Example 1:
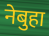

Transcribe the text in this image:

नेबुहा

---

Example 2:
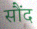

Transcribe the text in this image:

सौंद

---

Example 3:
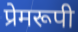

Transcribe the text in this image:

प्रेमरूपी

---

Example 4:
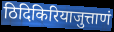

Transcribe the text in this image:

ठिदिकिरियाजुत्ताणं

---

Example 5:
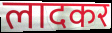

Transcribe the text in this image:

लादकर